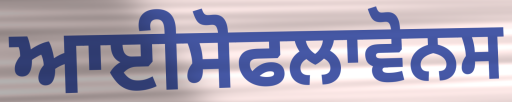
ਆਈਸੋਫਲਾਵੋਨਸ